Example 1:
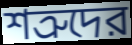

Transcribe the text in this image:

শত্রুদের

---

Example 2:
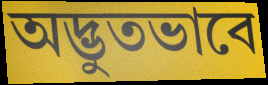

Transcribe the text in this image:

অদ্ভুতভাবে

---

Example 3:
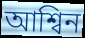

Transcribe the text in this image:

আশ্বিন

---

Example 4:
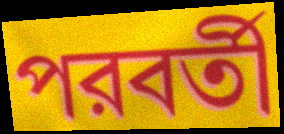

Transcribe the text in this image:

পরবর্তী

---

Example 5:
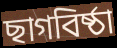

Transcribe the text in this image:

ছাগবিষ্ঠা